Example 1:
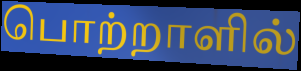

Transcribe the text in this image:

பொற்றாளில்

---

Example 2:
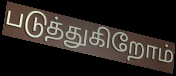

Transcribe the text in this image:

படுத்துகிறோம்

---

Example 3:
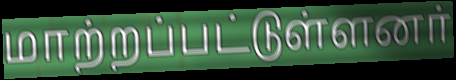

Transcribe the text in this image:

மாற்றப்பட்டுள்ளனர்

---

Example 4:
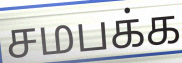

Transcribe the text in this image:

சமபக்க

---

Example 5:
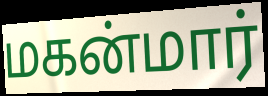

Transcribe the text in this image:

மகன்மார்